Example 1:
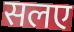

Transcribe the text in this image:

सलए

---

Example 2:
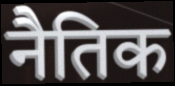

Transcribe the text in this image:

नैतिक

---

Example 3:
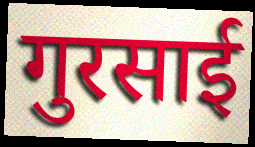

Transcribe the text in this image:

गुरसाई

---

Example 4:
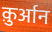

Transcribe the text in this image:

क़ुर्आन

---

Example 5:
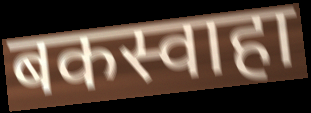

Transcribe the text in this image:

बकस्वाहा